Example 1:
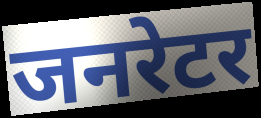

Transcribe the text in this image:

जनरेटर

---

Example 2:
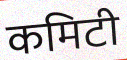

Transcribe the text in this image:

कमिटी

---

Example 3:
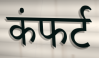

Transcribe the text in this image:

कंफर्ट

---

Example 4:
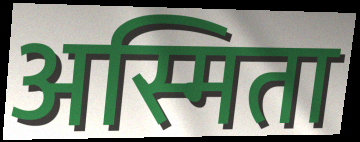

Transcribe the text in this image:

अस्मिता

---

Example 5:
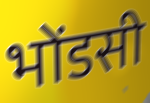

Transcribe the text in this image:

भोंडसी